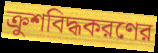
ক্রুশবিদ্ধকরণের